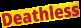
Deathless